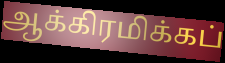
ஆக்கிரமிக்கப்